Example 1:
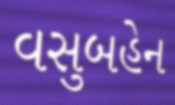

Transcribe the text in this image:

વસુબહેન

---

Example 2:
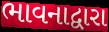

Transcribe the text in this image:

ભાવનાદ્વારા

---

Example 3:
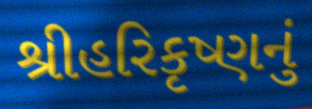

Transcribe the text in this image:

શ્રીહરિકૃષ્ણનું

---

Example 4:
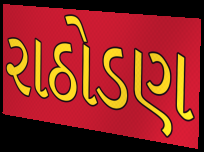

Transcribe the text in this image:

રાઠોડણ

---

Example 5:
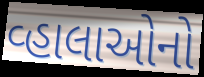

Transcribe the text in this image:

વ્હાલાઓનો